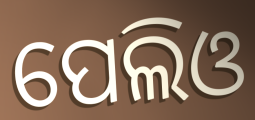
ପେଲିଓ